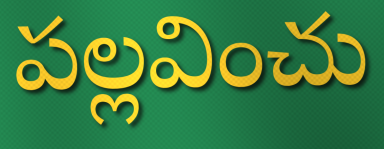
పల్లవించు